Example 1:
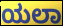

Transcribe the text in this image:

ಯಲಾ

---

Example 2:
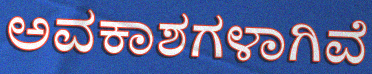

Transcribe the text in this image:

ಅವಕಾಶಗಳಾಗಿವೆ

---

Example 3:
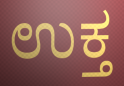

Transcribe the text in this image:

ಉಕ್ತ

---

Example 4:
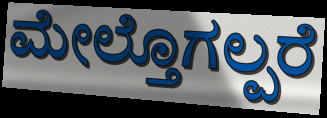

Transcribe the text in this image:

ಮೇಲ್ತೊಗಲ್ಪರೆ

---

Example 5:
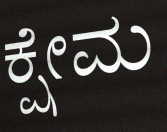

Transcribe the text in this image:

ಕ್ಷೇಮ